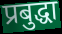
प्रबुद्धा